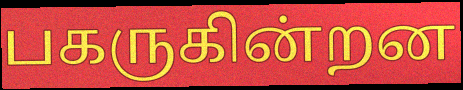
பகருகின்றன